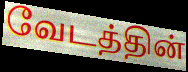
வேடத்தின்